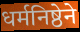
धर्मनिष्ठेने